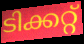
ടിക്കറ്റ്